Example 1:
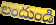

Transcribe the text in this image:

లందుండి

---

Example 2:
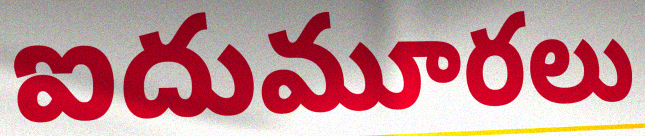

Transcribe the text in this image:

ఐదుమూరలు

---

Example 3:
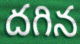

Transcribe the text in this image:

దగిన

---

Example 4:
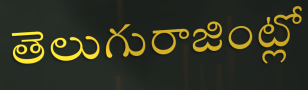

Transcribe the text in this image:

తెలుగురాజింట్లో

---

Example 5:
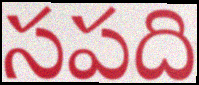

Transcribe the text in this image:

సపది